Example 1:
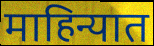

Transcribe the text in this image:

माहिन्यात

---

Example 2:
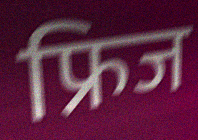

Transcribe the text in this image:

फ्रिज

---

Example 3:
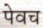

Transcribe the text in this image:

पेवच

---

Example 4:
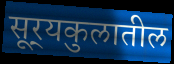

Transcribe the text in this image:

सूर्यकुलातील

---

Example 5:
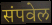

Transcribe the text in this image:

संपवेल